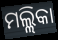
ମଲ୍ଲିକା